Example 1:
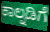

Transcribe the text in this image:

ಕಾಲ್ನಡಿಗೆ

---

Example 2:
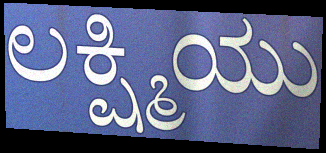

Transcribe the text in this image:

ಲಕ್ಷ್ಮಿಯು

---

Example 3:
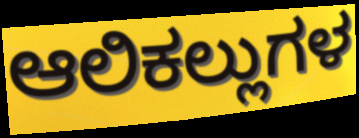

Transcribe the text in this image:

ಆಲಿಕಲ್ಲುಗಳ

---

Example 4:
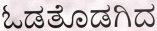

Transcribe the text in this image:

ಓಡತೊಡಗಿದ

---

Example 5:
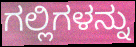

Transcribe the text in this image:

ಗಲ್ಲಿಗಳನ್ನು